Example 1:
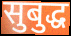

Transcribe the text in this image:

सुबुद्ध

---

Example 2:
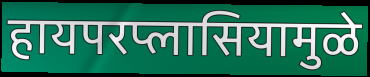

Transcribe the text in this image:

हायपरप्लासियामुळे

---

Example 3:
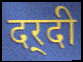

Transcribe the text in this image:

दर्दी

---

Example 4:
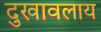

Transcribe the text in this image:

दुखावलाय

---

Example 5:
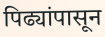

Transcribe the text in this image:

पिढ्यांपासून